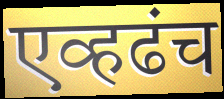
एव्हढंच